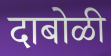
दाबोळी